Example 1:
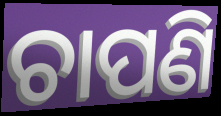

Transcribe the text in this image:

ଚାପଣି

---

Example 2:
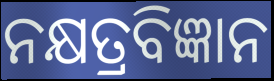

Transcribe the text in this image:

ନକ୍ଷତ୍ରବିଜ୍ଞାନ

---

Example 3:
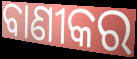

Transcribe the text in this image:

ବାଣୀକର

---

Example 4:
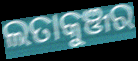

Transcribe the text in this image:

ଲତାକୁଞ୍ଜର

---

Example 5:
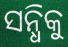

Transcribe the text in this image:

ସନ୍ଧିକୁ